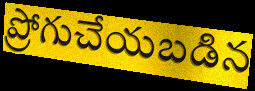
ప్రోగుచేయబడిన